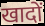
खादों